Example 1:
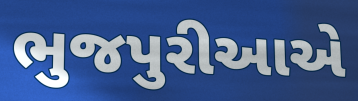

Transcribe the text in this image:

ભુજપુરીઆએ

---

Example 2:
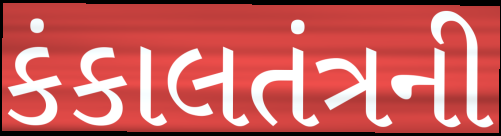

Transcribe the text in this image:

કંકાલતંત્રની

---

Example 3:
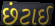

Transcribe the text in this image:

છંટાઈ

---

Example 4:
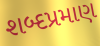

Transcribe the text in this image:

શબ્દપ્રમાણ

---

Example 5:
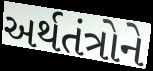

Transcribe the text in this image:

અર્થતંત્રોને